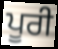
ਪੂਰੀ